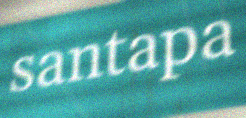
santapa